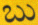
ಬು